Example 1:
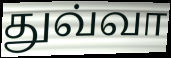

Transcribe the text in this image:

துவ்வா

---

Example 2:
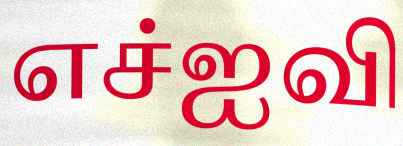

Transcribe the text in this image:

எச்ஐவி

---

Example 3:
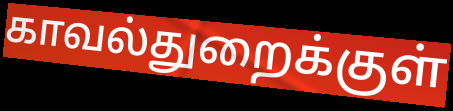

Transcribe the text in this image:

காவல்துறைக்குள்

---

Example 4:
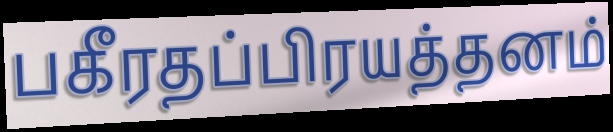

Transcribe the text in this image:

பகீரதப்பிரயத்தனம்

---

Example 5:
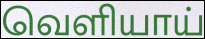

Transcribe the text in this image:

வெளியாய்